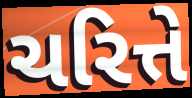
ચરિત્તે